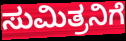
ಸುಮಿತ್ರನಿಗೆ